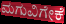
ಮಗುವಿಗೇಕೆ